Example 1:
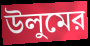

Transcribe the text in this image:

উলুমের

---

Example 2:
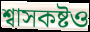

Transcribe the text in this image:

শ্বাসকষ্টও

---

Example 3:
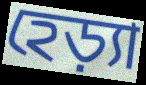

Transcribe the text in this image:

হেড়্যা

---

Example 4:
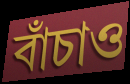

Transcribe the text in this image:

বাঁচাও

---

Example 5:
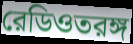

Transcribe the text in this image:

রেডিওতরঙ্গ